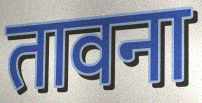
तावना